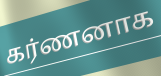
கர்ணனாக